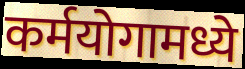
कर्मयोगामध्ये